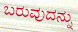
ಬರುವುದನ್ನು